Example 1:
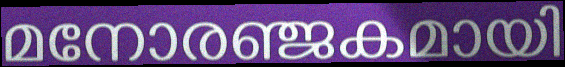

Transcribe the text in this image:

മനോരഞ്ജകമായി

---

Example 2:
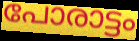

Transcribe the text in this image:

പോരാട്ടം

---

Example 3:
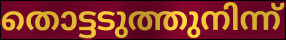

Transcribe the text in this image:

തൊട്ടടുത്തുനിന്ന്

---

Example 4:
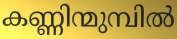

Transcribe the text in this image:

കണ്ണിന്മുമ്പിൽ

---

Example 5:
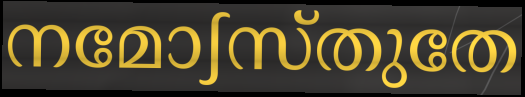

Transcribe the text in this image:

നമോഽസ്തുതേ